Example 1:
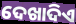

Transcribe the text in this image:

ଦେଖାଦିଏ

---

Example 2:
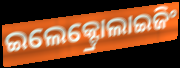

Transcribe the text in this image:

ଇଲେକ୍ଟ୍ରୋଲାଇଜିଂ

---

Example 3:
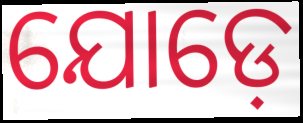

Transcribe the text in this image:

ଯୋଡ଼େ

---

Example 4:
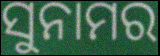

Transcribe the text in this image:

ସୁନାମର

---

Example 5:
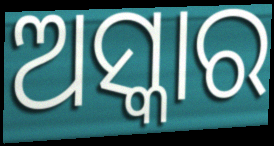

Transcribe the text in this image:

ଅସ୍କାର